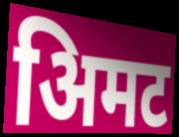
अिमट